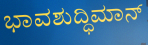
ಭಾವಶುದ್ಧಿಮಾನ್